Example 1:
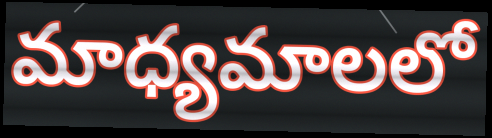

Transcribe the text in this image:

మాధ్యమాలలో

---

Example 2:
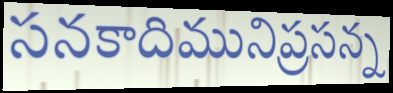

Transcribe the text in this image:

సనకాదిమునిప్రసన్న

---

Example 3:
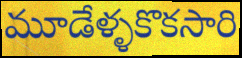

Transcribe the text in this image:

మూడేళ్ళకొకసారి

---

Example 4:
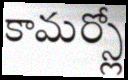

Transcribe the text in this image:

కామర్స్లో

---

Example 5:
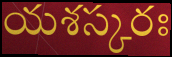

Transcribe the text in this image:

యశస్కరః